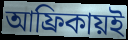
আফ্রিকায়ই